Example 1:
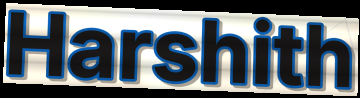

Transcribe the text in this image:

Harshith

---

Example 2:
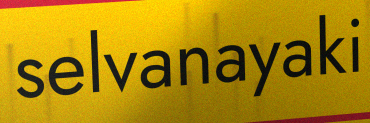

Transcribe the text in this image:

selvanayaki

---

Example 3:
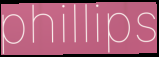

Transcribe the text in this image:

phillips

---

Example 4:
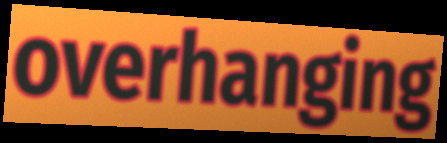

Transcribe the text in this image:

overhanging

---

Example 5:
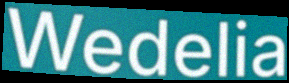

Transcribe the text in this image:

Wedelia